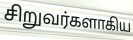
சிறுவர்களாகிய